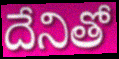
దేనితో